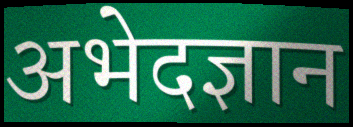
अभेदज्ञान